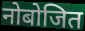
नोबोजित